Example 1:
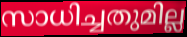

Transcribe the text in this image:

സാധിച്ചതുമില്ല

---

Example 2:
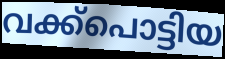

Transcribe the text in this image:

വക്ക്പൊട്ടിയ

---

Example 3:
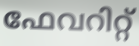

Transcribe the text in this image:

ഫേവറിറ്റ്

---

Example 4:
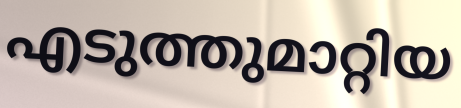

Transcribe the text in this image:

എടുത്തുമാറ്റിയ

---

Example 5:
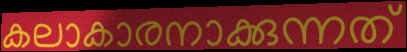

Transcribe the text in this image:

കലാകാരനാക്കുന്നത്